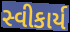
સ્વીકાર્ય